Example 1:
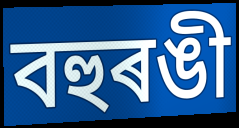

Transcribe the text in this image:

বহুৰঙী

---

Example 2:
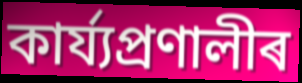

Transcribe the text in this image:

কাৰ্য্যপ্ৰণালীৰ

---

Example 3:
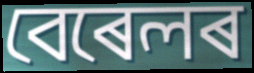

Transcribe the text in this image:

বেৰেলৰ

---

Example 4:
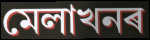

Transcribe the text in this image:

মেলাখনৰ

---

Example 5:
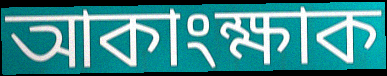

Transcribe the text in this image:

আকাংক্ষাক